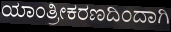
ಯಾಂತ್ರೀಕರಣದಿಂದಾಗಿ